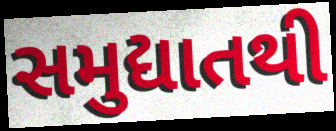
સમુદ્યાતથી